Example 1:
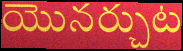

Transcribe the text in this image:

యొనర్చుట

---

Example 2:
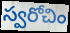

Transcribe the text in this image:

స్వరోచిం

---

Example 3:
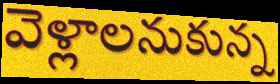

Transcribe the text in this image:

వెళ్లాలనుకున్న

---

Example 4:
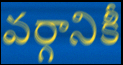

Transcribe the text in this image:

వర్గానికీ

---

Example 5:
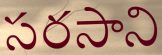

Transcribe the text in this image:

సరసాని